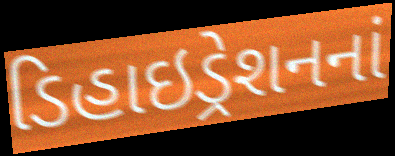
ડિહાઇડ્રેશનનાં